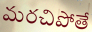
మరచిపోతే